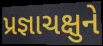
પ્રજ્ઞાચક્ષુને